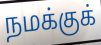
நமக்குக்